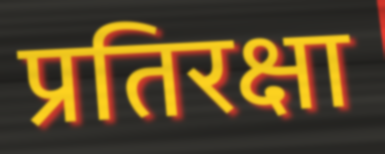
प्रतिरक्षा